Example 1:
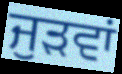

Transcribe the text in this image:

ਜੁੜਵਾਂ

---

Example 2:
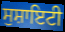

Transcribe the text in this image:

ਸੁਸ਼ਾਇਟੀ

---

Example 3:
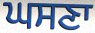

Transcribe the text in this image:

ਘਸਣਾ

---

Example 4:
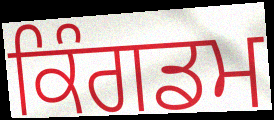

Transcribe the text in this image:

ਕਿੰਗਡਮ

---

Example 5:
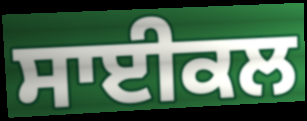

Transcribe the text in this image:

ਸਾਈਕਲ